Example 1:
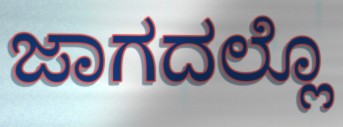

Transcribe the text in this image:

ಜಾಗದಲ್ಲೊ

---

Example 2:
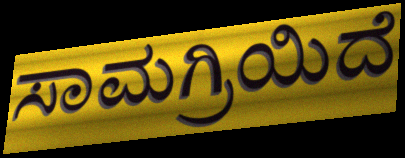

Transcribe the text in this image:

ಸಾಮಗ್ರಿಯಿದೆ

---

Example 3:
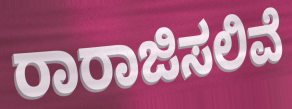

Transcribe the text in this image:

ರಾರಾಜಿಸಲಿವೆ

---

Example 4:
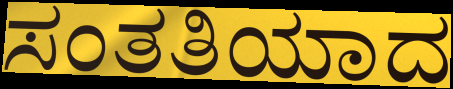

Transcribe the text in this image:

ಸಂತತಿಯಾದ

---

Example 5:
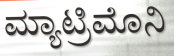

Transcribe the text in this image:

ಮ್ಯಾಟ್ರಿಮೊನಿ